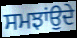
ਸਮਝਾਂਉਦੇ